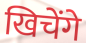
खिचेंगे